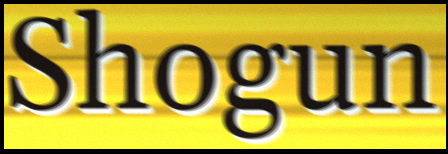
Shogun